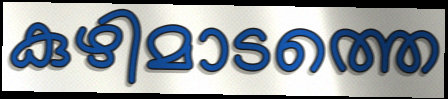
കുഴിമാടത്തെ